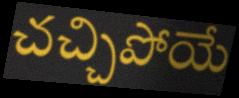
చచ్చిపోయే